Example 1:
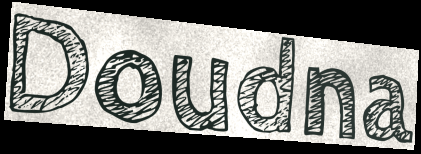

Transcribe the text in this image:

Doudna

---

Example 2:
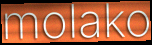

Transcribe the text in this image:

molako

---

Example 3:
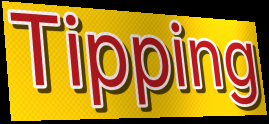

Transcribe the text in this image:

Tipping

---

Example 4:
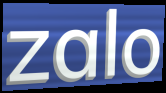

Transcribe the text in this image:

zalo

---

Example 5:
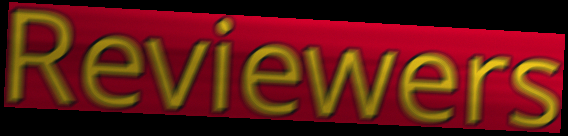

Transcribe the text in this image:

Reviewers